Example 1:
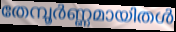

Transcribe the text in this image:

തേമ്പൂർണ്ണമായിതൾ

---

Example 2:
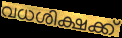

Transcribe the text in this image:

വധശിക്ഷക്ക്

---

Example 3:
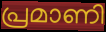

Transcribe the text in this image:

പ്രമാണി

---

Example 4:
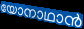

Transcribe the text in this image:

യോനാഥാൻ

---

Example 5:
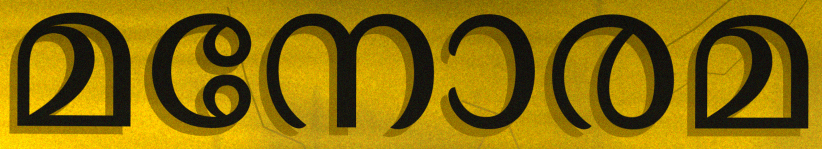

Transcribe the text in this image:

മനോരമ